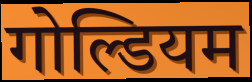
गोल्डियम